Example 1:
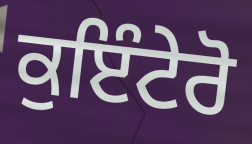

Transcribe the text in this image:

ਕੁਇੰਟੇਰੋ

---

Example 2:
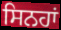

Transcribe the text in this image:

ਸਿਨਹਾਂ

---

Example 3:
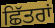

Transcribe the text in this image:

ਛਿੱਤਰਾਂ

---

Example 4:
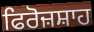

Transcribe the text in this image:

ਫਿਰੋਜ਼ਸ਼ਾਹ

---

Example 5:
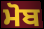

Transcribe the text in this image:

ਮੋਬ